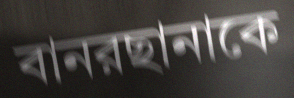
বানরছানাকে